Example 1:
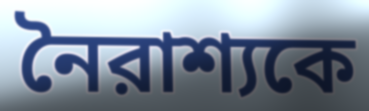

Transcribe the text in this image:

নৈরাশ্যকে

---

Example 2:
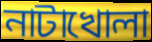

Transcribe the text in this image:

নাটাখোলা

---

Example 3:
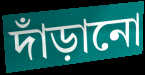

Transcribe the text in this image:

দাঁড়ানো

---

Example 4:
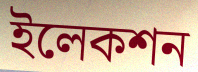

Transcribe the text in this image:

ইলেকশন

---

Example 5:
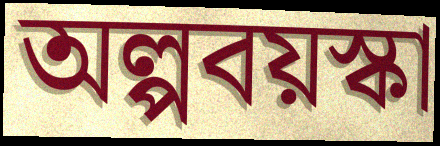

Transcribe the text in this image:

অল্পবয়স্কা